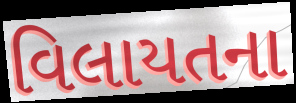
વિલાયતના